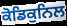
ਕੋਡਿਕੁਨਿਲ